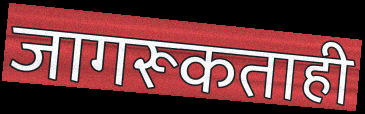
जागरूकताही